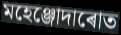
মহেঞ্জোদাৰোত